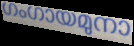
ഗംഗായമുനാ